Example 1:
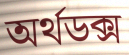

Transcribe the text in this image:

অৰ্থডক্স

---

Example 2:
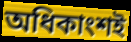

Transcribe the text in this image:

অধিকাংশই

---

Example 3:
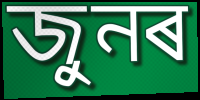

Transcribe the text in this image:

জুনৰ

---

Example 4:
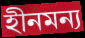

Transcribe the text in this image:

হীনমন্য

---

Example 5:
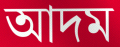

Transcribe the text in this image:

আদম